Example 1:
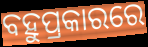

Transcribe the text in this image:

ବହୁପ୍ରକାରରେ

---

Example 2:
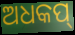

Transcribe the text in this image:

ଅଧକପ୍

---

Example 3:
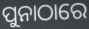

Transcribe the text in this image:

ପୁନାଠାରେ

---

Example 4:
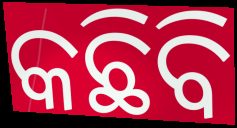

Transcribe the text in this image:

କଛିବି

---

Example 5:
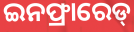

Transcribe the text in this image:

ଇନଫ୍ରାରେଡ୍